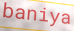
baniya